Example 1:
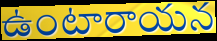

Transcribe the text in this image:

ఉంటారాయన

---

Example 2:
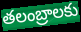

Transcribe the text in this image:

తలంబ్రాలకు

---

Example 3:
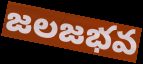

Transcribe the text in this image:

జలజభవ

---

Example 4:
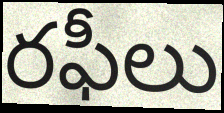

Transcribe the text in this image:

రఫీలు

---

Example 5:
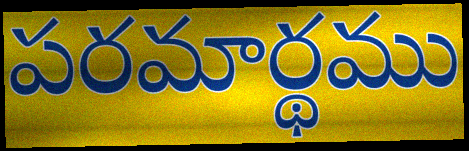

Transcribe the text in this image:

పరమార్థము